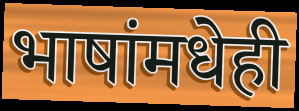
भाषांमधेही